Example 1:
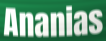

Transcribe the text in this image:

Ananias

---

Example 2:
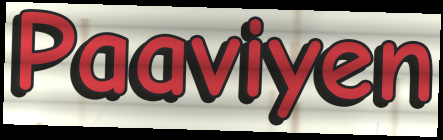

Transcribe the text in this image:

Paaviyen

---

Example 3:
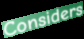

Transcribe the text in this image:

Considers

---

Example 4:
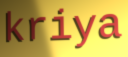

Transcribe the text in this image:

kriya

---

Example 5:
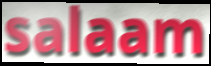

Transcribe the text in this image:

salaam